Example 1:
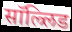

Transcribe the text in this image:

सॉल्लिड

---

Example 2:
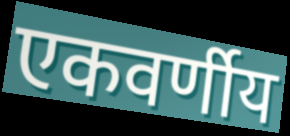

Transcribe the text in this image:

एकवर्णीय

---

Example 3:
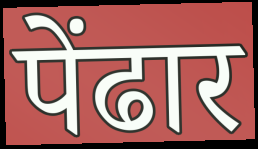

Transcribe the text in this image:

पेंढार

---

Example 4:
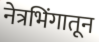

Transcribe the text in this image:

नेत्रभिंगातून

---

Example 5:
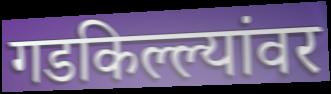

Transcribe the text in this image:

गडकिल्ल्यांवर